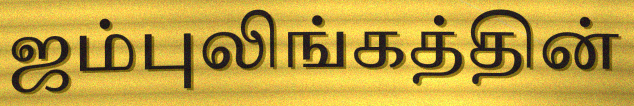
ஜம்புலிங்கத்தின்